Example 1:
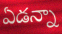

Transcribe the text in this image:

ఏడన్నా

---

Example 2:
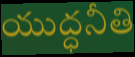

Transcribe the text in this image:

యుద్ధనీతి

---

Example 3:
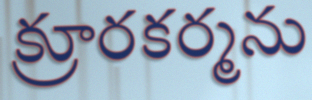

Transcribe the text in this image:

క్రూరకర్మను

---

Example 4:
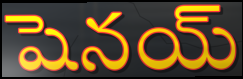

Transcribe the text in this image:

షెనయ్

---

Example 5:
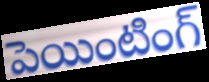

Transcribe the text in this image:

పెయింటింగ్